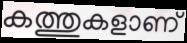
കത്തുകളാണ്